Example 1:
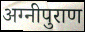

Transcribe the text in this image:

अग्नीपुराण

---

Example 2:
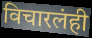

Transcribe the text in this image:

विचारलंही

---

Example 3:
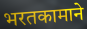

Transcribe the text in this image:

भरतकामाने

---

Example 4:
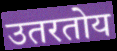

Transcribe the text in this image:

उतरतोय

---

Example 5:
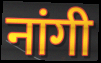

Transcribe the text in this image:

नांगी